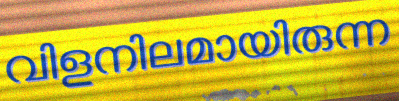
വിളനിലമായിരുന്ന